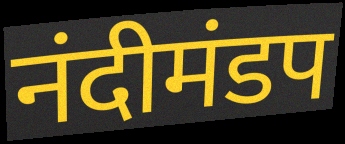
नंदीमंडप